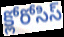
క్లోరోసిస్